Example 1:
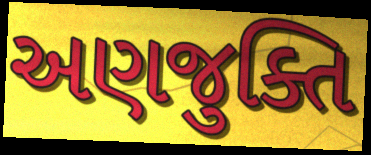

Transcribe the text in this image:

અણજુક્તિ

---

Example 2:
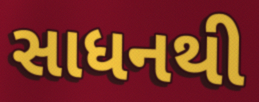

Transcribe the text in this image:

સાધનથી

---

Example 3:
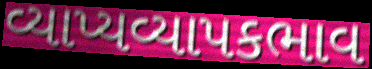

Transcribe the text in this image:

વ્યાપ્યવ્યાપકભાવ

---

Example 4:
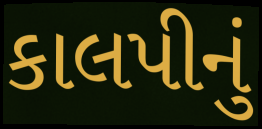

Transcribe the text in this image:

કાલપીનું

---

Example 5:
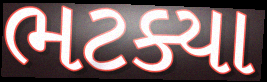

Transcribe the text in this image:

ભટક્યા